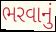
ભરવાનું